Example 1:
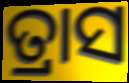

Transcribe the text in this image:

ତ୍ରାସ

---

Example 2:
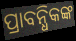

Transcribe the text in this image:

ପ୍ରାବନ୍ଧିକଙ୍କ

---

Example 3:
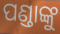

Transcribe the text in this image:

ପଣ୍ଡାଙ୍କୁ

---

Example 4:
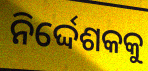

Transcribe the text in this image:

ନିର୍ଦ୍ଦେଶକକୁ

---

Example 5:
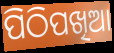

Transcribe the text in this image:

ପିଠିପଖିଆ